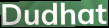
Dudhat